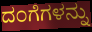
ದಂಗೆಗಳನ್ನು